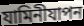
যামিনীযাপন